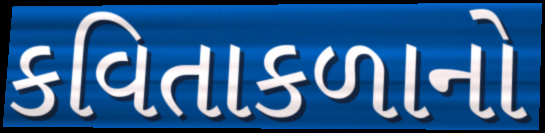
કવિતાકળાનો